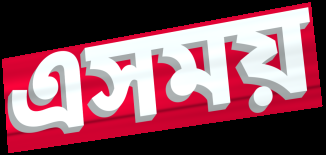
এসময়